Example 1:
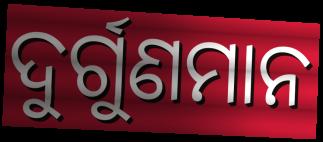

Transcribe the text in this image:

ଦୁର୍ଗୁଣମାନ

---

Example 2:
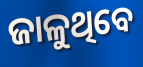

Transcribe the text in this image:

ଜାଳୁଥିବେ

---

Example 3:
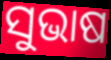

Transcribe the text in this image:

ସୁଭାଷ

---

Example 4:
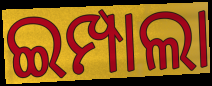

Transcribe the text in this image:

ଇମ୍ପାଲା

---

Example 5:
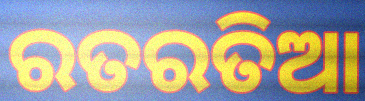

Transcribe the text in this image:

ରତରତିଆ